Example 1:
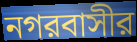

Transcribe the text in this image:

নগরবাসীর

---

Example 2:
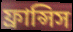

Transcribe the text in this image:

ফ্রান্সিস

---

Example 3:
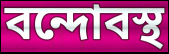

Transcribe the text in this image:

বন্দোবস্থ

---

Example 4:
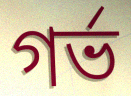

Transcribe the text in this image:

গর্ভ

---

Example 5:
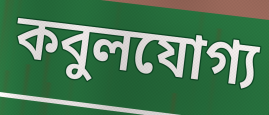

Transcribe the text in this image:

কবুলযোগ্য